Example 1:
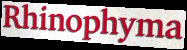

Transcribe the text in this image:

Rhinophyma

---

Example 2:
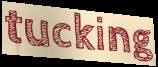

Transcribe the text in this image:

tucking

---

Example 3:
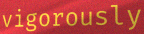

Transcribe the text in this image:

vigorously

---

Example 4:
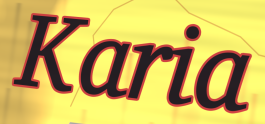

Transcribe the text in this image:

Karia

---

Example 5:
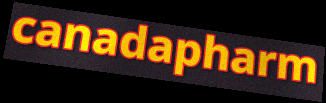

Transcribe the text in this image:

canadapharm